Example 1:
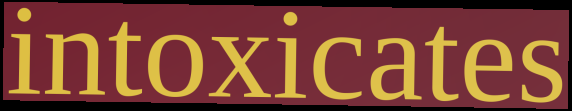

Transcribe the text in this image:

intoxicates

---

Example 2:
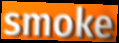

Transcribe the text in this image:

smoke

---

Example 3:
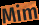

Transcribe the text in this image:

Mim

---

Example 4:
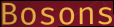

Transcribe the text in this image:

Bosons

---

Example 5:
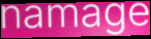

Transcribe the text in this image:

namage